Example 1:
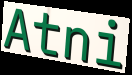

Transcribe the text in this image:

Atni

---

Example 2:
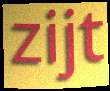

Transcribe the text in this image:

zijt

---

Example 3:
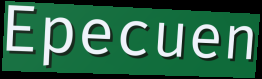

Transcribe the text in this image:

Epecuen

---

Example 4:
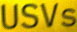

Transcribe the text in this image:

USVs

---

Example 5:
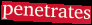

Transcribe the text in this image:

penetrates